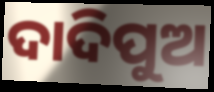
ଦାଦିପୁଅ